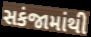
સકંજામાંથી